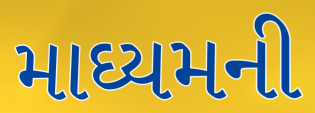
માઘ્યમની